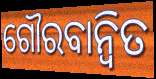
ଗୌରବାନ୍ୱିତ